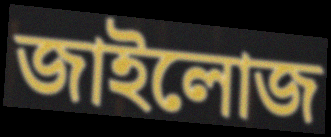
জাইলোজ